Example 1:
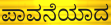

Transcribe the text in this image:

ಪಾವನೆಯಾದ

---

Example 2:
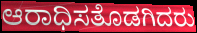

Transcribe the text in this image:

ಆರಾಧಿಸತೊಡಗಿದರು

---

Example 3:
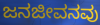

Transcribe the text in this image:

ಜನಜೀವನವು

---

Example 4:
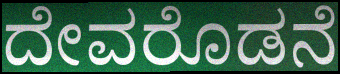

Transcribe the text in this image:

ದೇವರೊಡನೆ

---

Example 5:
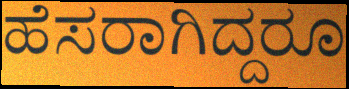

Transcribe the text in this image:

ಹೆಸರಾಗಿದ್ದರೂ